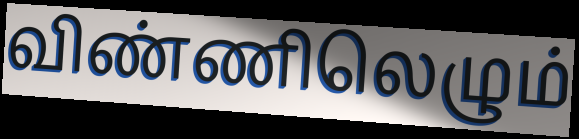
விண்ணிலெழும்